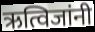
ऋत्विजांनी